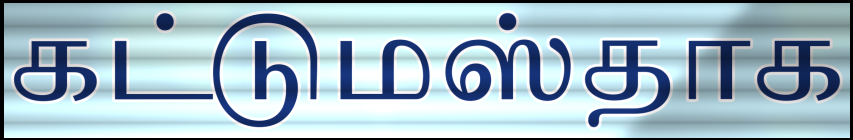
கட்டுமஸ்தாக